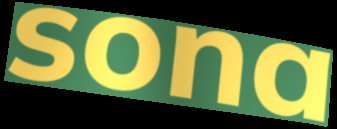
sona